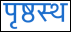
पृष्ठस्थ